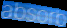
absorb